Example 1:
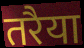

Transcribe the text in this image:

तरैया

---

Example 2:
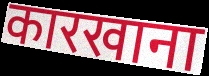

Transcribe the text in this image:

कारखाना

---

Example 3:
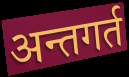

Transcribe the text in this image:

अन्तगर्त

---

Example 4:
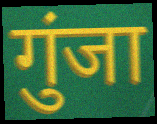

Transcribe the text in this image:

गुंजा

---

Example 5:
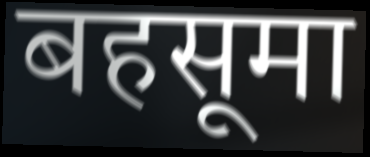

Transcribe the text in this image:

बहसूमा